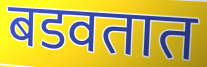
बडवतात